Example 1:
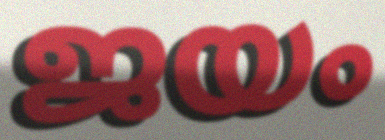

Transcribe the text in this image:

ജയം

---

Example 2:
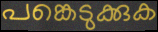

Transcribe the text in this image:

പങ്കെടുക്കുക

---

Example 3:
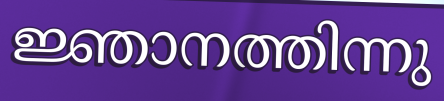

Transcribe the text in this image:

ജ്ഞാനത്തിന്നു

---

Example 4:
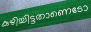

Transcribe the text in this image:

കുഴിച്ചിട്ടതാണെടോ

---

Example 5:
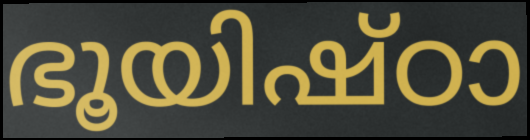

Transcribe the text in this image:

ഭൂയിഷ്ഠാ